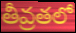
తీవ్రతలో